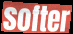
softer